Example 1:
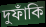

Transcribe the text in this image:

দুফাঁকি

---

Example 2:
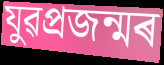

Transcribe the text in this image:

যুৱপ্ৰজন্মৰ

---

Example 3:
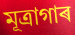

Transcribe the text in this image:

মূত্ৰাগাৰ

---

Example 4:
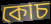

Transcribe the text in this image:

কোচ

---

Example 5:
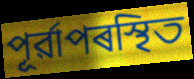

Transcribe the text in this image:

পূৰ্ৱাপৰস্থিত